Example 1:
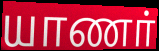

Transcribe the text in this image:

யாணர்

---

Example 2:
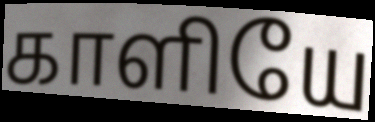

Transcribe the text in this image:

காளியே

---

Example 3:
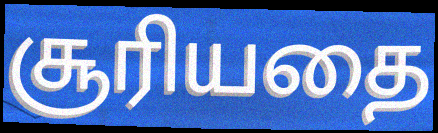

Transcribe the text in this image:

சூரியதை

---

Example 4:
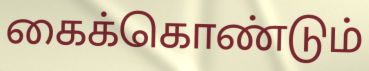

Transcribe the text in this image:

கைக்கொண்டும்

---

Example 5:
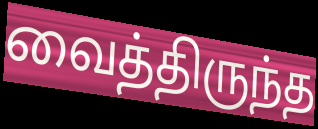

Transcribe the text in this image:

வைத்திருந்த